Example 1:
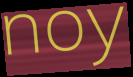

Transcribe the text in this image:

noy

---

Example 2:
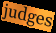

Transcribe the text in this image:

judges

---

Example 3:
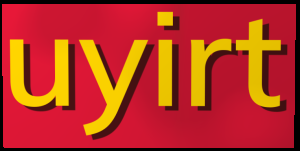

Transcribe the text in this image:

uyirt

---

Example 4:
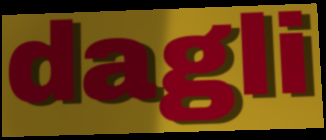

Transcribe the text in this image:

dagli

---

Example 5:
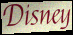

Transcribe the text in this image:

Disney